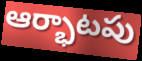
ఆర్భాటపు